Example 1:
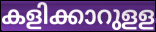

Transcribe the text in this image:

കളിക്കാറുളള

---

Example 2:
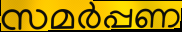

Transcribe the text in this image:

സമർപ്പണ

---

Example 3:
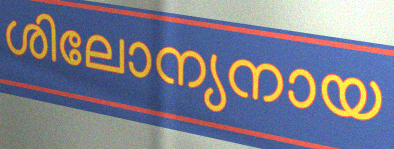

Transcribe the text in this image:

ശിലോന്യനായ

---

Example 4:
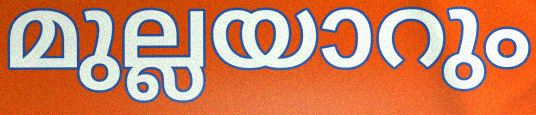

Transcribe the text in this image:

മുല്ലയാറും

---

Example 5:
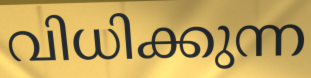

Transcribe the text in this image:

വിധിക്കുന്ന